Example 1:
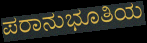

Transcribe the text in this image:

ಪರಾನುಭೂತಿಯ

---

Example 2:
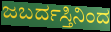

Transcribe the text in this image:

ಜಬರ್ದಸ್ತಿನಿಂದ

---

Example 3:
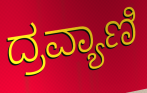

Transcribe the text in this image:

ದ್ರವ್ಯಾಣಿ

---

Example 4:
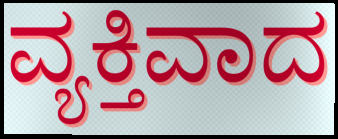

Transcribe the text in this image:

ವ್ಯಕ್ತಿವಾದ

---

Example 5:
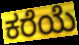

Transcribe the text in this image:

ಕರೆಯೆ